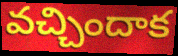
వచ్చిందాక